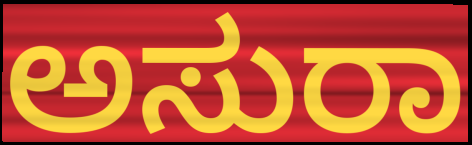
ಅಸುರಾ